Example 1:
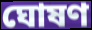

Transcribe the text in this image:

ঘোষণ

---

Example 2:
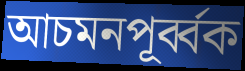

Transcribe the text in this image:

আচমনপূর্ব্বক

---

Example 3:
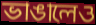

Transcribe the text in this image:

ভাঙালেও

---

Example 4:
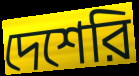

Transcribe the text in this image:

দেশেরি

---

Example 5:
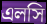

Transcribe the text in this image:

এলসি